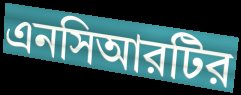
এনসিআরটির